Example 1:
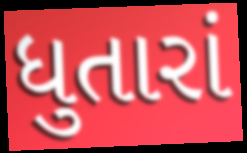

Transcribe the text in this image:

ધુતારાં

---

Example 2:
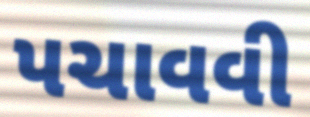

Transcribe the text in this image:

પચાવવી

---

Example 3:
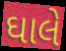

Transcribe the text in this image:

ઘાલે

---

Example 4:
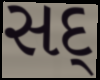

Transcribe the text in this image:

સદ્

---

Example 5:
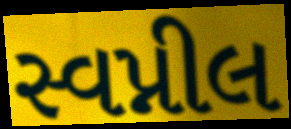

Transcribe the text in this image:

સ્વપ્નીલ